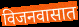
विजनवासात